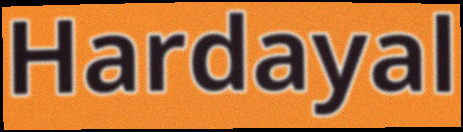
Hardayal